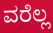
ವರೆಲ್ಲ